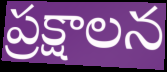
ప్రక్షాలన